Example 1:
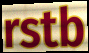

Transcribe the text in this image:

rstb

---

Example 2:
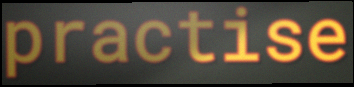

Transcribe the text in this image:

practise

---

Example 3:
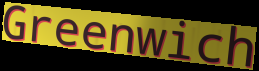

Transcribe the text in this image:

Greenwich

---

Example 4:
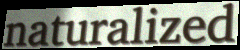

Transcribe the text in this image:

naturalized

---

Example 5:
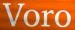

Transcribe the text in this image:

Voro